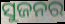
ସୁଜନର